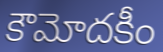
కౌమోదకీం